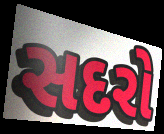
સદરો